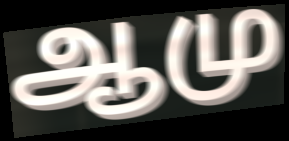
ஆமு